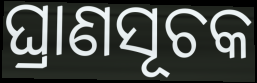
ଘ୍ରାଣସୂଚକ